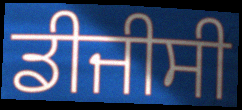
ਡੀਜੀਸੀ